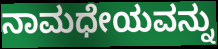
ನಾಮಧೇಯವನ್ನು